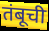
तंबूची